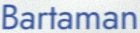
Bartaman